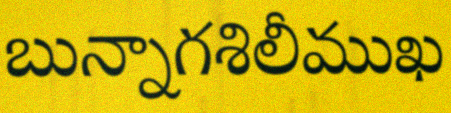
బున్నాగశిలీముఖ